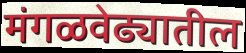
मंगळवेढ्यातील